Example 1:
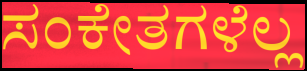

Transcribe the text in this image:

ಸಂಕೇತಗಳೆಲ್ಲ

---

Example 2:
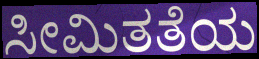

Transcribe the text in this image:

ಸೀಮಿತತೆಯ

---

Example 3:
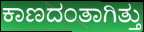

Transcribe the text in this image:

ಕಾಣದಂತಾಗಿತ್ತು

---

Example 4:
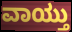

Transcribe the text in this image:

ವಾಯ್ತು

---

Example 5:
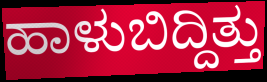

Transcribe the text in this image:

ಹಾಳುಬಿದ್ದಿತ್ತು